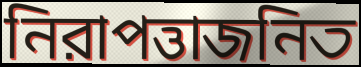
নিরাপত্তাজনিত